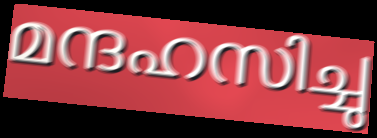
മന്ദഹസിച്ചു